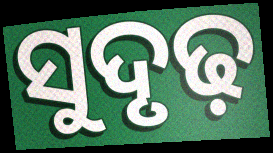
ସୁଦୃଢ଼